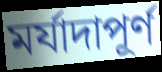
মর্যাদাপূর্ণ